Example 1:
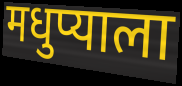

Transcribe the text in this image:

मधुप्याला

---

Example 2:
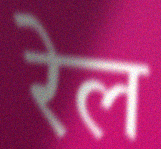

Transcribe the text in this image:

रेल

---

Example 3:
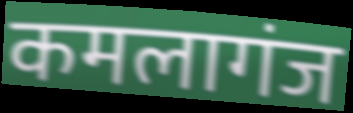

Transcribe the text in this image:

कमलागंज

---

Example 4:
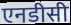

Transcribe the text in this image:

एनडीसी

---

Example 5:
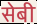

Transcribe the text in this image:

सेबी